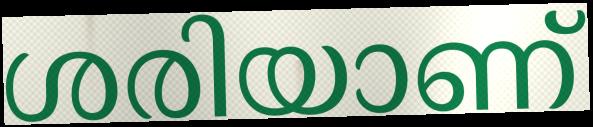
ശരിയാണ്